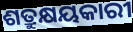
ଶତ୍ରୁକ୍ଷୟକାରୀ